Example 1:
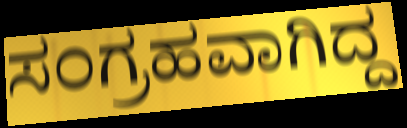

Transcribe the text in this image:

ಸಂಗ್ರಹವಾಗಿದ್ದ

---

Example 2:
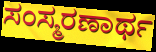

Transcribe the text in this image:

ಸಂಸ್ಮರಣಾರ್ಥ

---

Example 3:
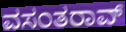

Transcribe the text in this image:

ವಸಂತರಾವ್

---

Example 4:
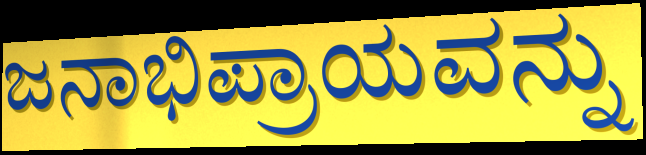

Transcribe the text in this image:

ಜನಾಭಿಪ್ರಾಯವನ್ನು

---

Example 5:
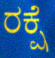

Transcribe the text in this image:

ರಕ್ಷೆ